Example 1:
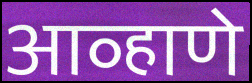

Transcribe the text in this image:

आव्हाणे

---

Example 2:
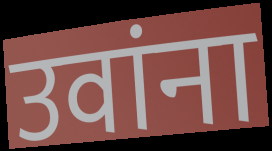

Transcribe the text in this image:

उवांना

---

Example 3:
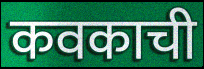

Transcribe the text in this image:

कवकाची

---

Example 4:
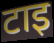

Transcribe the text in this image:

टाइ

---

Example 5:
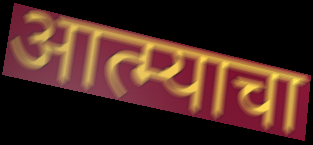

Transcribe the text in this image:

आत्म्याचा